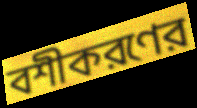
বশীকরণের